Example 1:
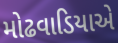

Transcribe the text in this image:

મોઢવાડિયાએ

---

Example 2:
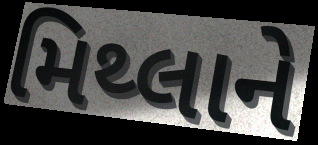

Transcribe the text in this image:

મિથ્લાને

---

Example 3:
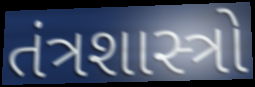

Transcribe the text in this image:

તંત્રશાસ્ત્રો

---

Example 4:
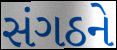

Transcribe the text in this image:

સંગઠને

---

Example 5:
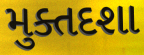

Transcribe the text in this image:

મુક્તદશા